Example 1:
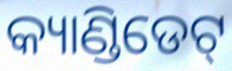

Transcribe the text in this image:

କ୍ୟାଣ୍ଡିଡେଟ୍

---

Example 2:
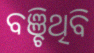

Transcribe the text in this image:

ବଞ୍ଚିଥିବି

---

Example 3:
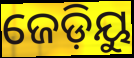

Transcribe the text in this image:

ଜେଡ଼ିୟୁ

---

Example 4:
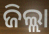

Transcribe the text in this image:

ଜିଲ୍ଲା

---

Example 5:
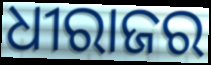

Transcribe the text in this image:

ଧୀରାଜର